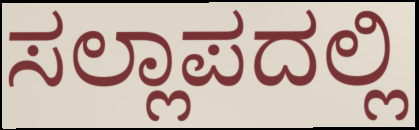
ಸಲ್ಲಾಪದಲ್ಲಿ